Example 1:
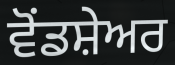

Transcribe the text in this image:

ਵੋਂਡਸ਼ੇਅਰ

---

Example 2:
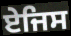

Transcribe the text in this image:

ਏਜਿਸ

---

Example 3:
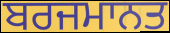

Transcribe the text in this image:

ਬਰਜਮਾਨਤ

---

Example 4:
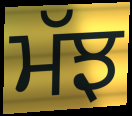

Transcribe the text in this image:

ਮੱਝ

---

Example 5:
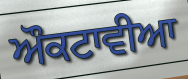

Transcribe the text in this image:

ਔਕਟਾਵੀਆ